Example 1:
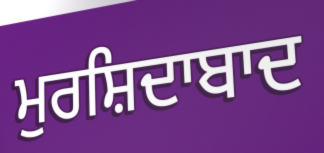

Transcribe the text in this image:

ਮੁਰਸ਼ਿਦਾਬਾਦ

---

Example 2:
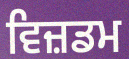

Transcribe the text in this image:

ਵਿਜ਼ਡਮ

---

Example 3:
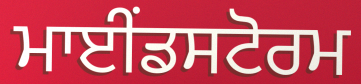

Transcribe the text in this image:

ਮਾਈਂਡਸਟੋਰਮ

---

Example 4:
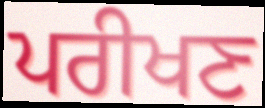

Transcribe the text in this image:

ਪਰੀਖਣ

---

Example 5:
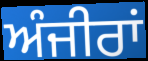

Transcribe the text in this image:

ਅੰਜੀਰਾਂ